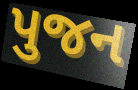
પુજન